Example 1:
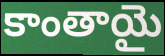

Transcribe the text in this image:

కాంతాయై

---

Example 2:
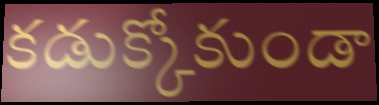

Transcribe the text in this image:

కడుక్కోకుండా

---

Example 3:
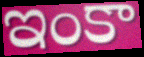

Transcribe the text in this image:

ఇంకా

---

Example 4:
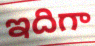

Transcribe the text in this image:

ఇదిగా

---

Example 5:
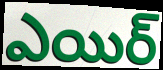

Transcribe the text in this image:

ఎయిర్